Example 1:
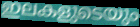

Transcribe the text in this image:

ഇലകളുടെയും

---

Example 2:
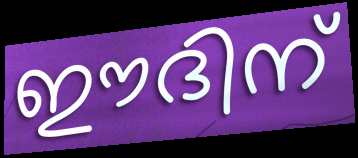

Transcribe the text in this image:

ഈദിന്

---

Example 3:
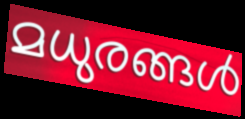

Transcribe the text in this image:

മധുരങ്ങൾ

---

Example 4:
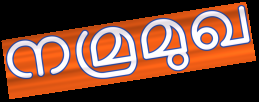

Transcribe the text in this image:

നമ്രമുഖ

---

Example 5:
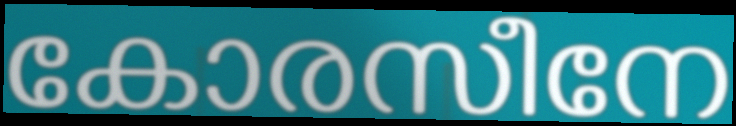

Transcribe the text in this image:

കോരസീനേ